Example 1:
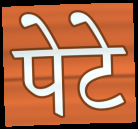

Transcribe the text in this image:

पेटे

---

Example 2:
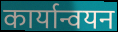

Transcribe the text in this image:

कार्यान्वयन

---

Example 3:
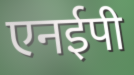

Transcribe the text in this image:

एनईपी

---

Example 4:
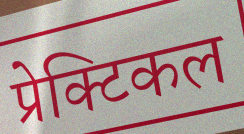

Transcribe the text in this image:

प्रेक्टिकल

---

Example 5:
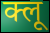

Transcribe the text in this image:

क्लू